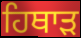
ਹਿਥਾੜ